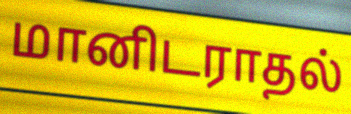
மானிடராதல்